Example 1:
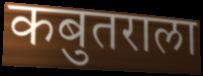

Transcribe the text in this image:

कबुतराला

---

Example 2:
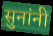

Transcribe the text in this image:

सुनांनी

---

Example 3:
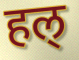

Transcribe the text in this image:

हल्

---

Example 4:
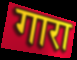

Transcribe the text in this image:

गारा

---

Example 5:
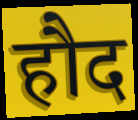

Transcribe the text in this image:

हौद